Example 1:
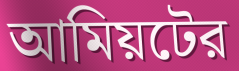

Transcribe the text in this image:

আমিয়টের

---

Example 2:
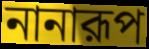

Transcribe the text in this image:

নানারূপ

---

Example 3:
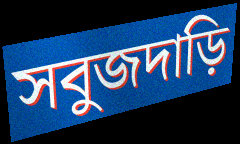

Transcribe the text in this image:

সবুজদাড়ি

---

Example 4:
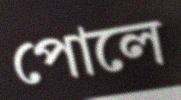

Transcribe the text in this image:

পোলে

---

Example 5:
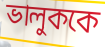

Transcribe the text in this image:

ভালুককে